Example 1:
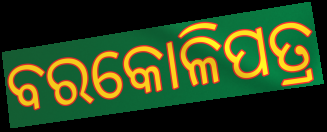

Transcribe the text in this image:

ବରକୋଳିପତ୍ର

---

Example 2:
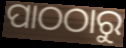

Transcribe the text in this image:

ପାଠଠାରୁ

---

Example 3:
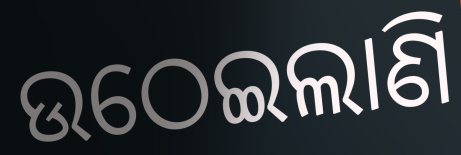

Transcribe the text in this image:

ଉଠେଇଲାଣି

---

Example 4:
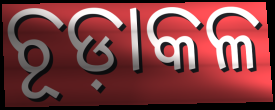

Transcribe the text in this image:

ଚୂଡ଼ାକଳ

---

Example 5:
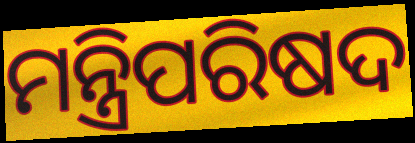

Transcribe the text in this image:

ମନ୍ତ୍ରିପରିଷଦ